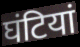
घंटियां